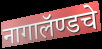
नागालॅण्डचे